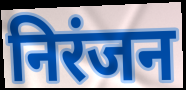
निरंजन